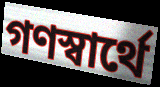
গণস্বার্থে